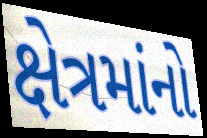
ક્ષેત્રમાંનો